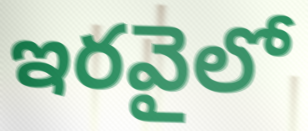
ఇరవైలో